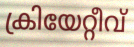
ക്രിയേറ്റീവ്